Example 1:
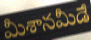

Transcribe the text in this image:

మీశానమీడే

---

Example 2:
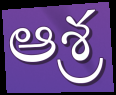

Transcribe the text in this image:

ఆశ్ర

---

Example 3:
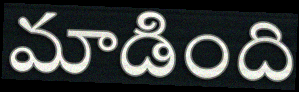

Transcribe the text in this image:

మాడింది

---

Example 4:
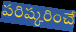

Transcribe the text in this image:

పరిష్కరించే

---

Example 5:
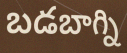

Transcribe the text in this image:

బడబాగ్ని